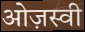
ओज़स्वी